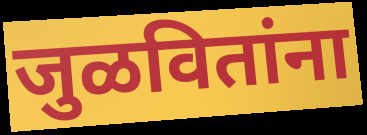
जुळवितांना